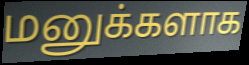
மனுக்களாக